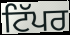
ਟਿੱਪਰ